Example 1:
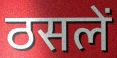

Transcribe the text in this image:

ठसलें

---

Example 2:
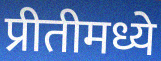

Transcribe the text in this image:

प्रीतीमध्ये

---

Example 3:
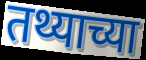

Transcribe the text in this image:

तथ्याच्या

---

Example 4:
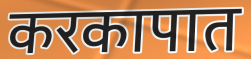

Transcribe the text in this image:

करकापात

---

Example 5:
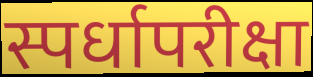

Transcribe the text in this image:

स्पर्धापरीक्षा